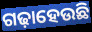
ଗଢ଼ାହେଉଛି